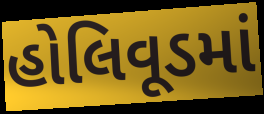
હોલિવૂડમાં